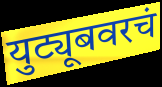
युट्यूबवरचं